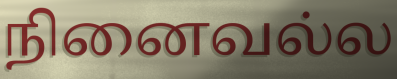
நினைவல்ல